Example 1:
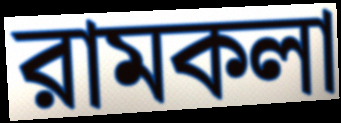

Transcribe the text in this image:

রামকলা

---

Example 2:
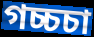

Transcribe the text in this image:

গচ্চচা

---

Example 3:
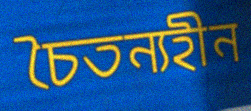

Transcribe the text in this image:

চৈতন্যহীন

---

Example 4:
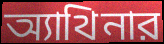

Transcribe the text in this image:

অ্যাথিনার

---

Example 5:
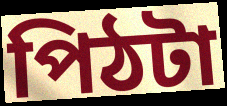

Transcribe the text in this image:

পিঠটা